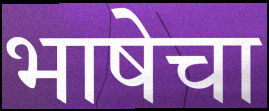
भाषेचा